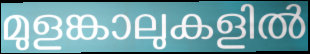
മുളങ്കാലുകളിൽ